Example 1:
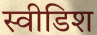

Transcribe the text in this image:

स्वीडिश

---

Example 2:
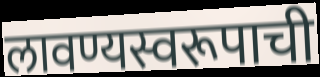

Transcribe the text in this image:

लावण्यस्वरूपाची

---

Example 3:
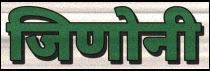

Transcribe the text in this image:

जिणोनी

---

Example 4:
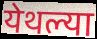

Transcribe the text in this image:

येथल्या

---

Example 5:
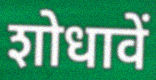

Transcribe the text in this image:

शोधावें